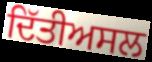
ਦਿੱਤੀਅਸਲ